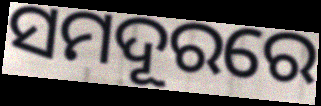
ସମଦୂରରେ